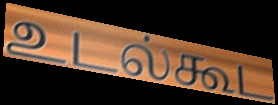
உடல்கூட